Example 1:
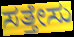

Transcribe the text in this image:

ಸತ್ತೇಸು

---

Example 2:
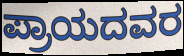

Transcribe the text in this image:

ಪ್ರಾಯದವರ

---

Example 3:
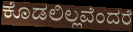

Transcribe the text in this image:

ಕೊಡಲಿಲ್ಲವೆಂದರೆ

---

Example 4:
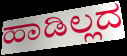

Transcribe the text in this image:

ಹಾಡಿಲ್ಲದ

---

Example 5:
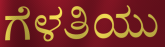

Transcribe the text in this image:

ಗೆಳತಿಯು